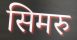
सिमरु